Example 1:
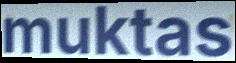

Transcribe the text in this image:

muktas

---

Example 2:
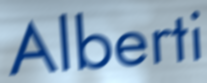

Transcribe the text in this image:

Alberti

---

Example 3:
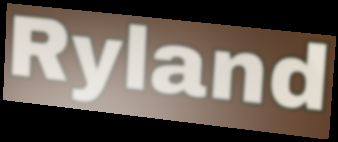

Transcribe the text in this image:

Ryland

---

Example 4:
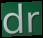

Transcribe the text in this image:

dr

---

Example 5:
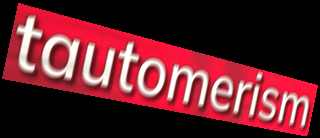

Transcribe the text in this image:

tautomerism